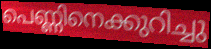
പെണ്ണിനെക്കുറിച്ചു